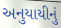
અનુયાયીનું